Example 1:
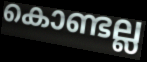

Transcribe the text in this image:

കൊണ്ടല്ല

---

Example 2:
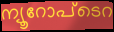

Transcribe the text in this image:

ന്യൂറോപ്ടെറ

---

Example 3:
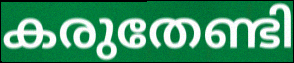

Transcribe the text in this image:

കരുതേണ്ടി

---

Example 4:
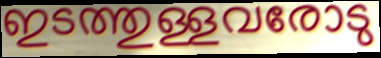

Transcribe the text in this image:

ഇടത്തുള്ളവരോടു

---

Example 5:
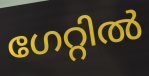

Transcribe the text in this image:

ഗേറ്റിൽ